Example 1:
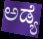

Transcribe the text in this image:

ಅಡ್ಯೆ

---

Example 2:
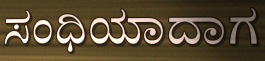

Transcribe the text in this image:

ಸಂಧಿಯಾದಾಗ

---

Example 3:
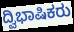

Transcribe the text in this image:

ದ್ವಿಭಾಷಿಕರು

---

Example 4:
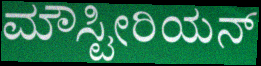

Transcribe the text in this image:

ಮೌಸ್ಟೀರಿಯನ್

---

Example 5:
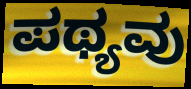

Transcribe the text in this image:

ಪಥ್ಯವು